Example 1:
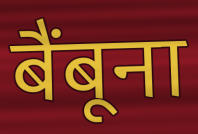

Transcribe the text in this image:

बैंबूना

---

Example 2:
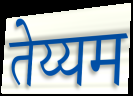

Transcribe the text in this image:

तेय्यम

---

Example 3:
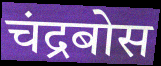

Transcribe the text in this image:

चंद्रबोस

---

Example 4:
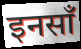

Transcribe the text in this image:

इनसाँ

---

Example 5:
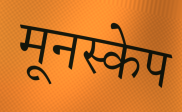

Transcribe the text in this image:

मूनस्केप